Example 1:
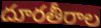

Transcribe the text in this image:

దూరతీరాల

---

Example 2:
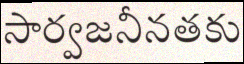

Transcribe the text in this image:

సార్వజనీనతకు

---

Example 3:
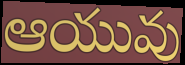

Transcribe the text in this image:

ఆయువు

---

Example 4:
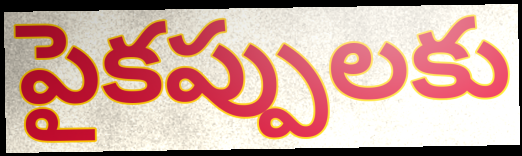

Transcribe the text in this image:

పైకప్పులకు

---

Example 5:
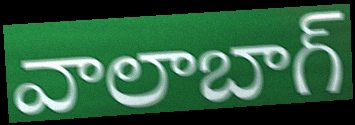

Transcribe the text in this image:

వాలాబాగ్